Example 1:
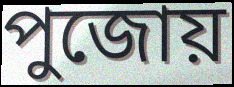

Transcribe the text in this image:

পুজোয়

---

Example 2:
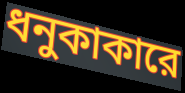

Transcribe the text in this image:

ধনুকাকারে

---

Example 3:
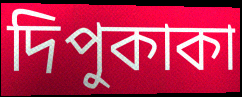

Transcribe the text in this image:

দিপুকাকা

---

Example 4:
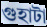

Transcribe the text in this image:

গুহাটা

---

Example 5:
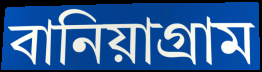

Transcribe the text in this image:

বানিয়াগ্রাম